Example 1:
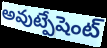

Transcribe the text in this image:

అవుట్పేషెంట్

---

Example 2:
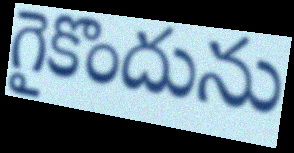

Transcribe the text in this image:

గైకొందును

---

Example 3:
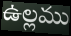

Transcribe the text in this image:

ఉల్లము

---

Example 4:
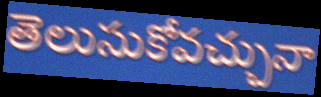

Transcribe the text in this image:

తెలుసుకోవచ్చునా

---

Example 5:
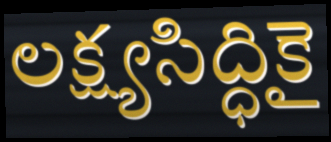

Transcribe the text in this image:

లక్ష్యసిద్ధికై